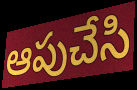
ఆపుచేసి